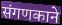
संगणकाने